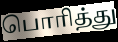
பொரித்து